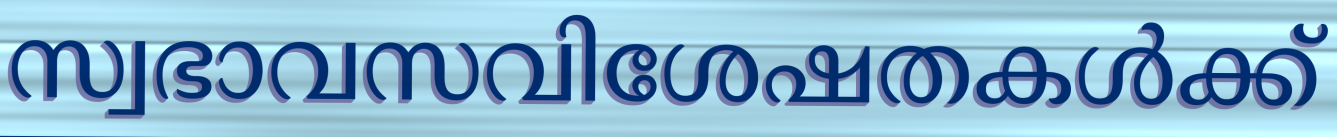
സ്വഭാവസവിശേഷതകൾക്ക്